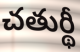
చతుర్థీ